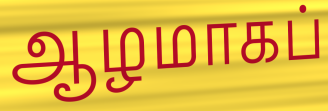
ஆழமாகப்